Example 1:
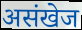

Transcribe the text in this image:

असंखेज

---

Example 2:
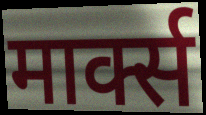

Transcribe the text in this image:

मार्क्स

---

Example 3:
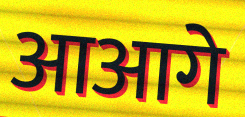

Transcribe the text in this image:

आआगे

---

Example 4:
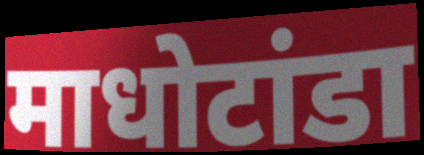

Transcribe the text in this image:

माधोटांडा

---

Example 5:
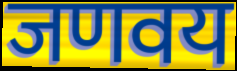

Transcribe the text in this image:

जणवय